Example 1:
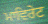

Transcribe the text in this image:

ਮਾਵਿਰੇਟ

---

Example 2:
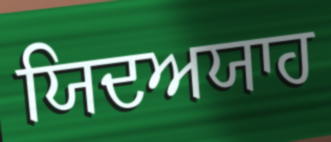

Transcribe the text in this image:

ਯਿਦਅਯਾਹ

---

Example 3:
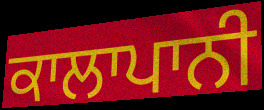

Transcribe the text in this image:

ਕਾਲਾਪਾਨੀ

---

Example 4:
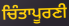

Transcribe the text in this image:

ਚਿੰਤਾਪੂਰਣੀ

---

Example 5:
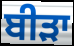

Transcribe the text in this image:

ਬੀੜਾ